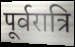
पूर्वरात्रि